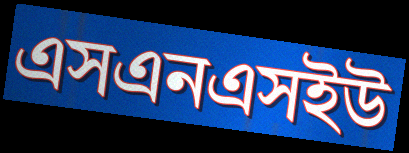
এসএনএসইউ